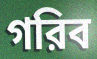
গরিব